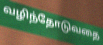
வழிந்தோடுவதை